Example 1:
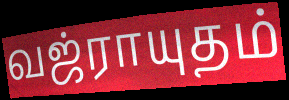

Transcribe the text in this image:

வஜ்ராயுதம்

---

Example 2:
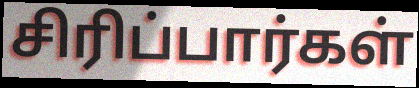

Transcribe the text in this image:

சிரிப்பார்கள்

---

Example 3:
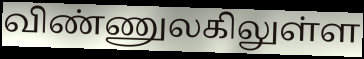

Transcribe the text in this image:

விண்ணுலகிலுள்ள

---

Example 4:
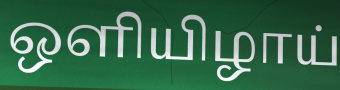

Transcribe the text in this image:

ஒளியிழாய்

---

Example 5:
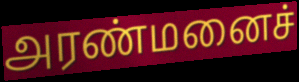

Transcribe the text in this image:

அரண்மனைச்